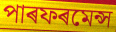
পাৰফৰমেন্স